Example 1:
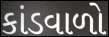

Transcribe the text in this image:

કાંડવાળો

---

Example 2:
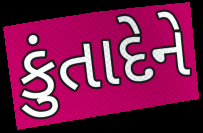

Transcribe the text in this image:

કુંતાદેને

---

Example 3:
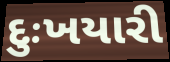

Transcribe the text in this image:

દુઃખયારી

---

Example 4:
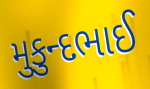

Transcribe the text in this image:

મુકુન્દભાઈ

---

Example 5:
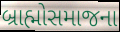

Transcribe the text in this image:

બ્રાહ્મોસમાજના